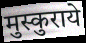
मुस्कुराये